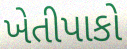
ખેતીપાકો